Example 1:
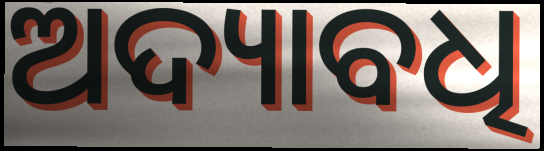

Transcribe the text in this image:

ଅଦ୍ୟାବଧି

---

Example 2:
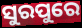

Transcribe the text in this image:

ସୁରପୁରେ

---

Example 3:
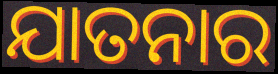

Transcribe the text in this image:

ଯାତନାର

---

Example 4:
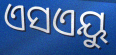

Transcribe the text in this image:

ଏସଏୟୁ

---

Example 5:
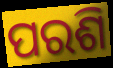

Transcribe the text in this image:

ପରଶି